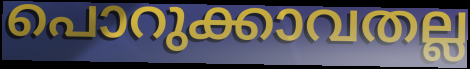
പൊറുക്കാവതല്ല